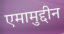
एमामुद्दीन